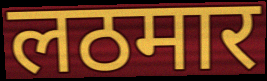
लठमार